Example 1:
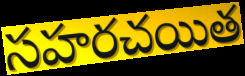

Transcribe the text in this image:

సహరచయిత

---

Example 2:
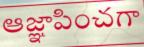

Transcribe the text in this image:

ఆజ్ఞాపించగా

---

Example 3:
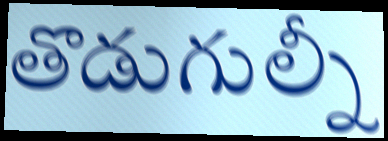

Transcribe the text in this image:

తొడుగుల్నీ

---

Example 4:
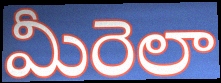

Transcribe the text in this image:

మీరెలా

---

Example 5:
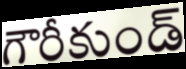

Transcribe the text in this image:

గౌరీకుండ్